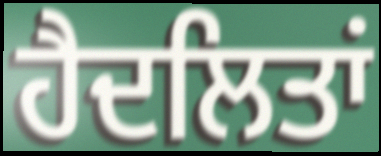
ਹੈਦਲਿਤਾਂ